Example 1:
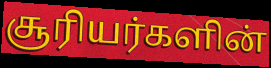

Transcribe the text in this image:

சூரியர்களின்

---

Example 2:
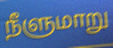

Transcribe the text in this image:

நீளுமாறு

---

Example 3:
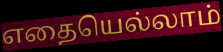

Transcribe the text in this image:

எதையெல்லாம்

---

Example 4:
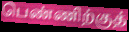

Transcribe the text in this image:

பெண்ணிற்குத்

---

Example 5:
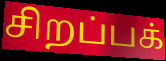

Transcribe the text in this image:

சிறப்பக்